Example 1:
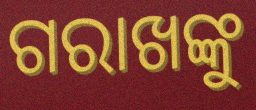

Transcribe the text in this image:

ଗରାଖଙ୍କୁ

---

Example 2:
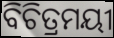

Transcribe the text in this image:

ବିଚିତ୍ରମୟୀ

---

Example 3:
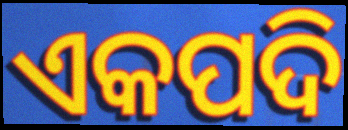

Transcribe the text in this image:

ଏକପଦି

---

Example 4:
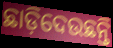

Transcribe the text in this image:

ଛାଡ଼ିଦେଉଛନ୍ତି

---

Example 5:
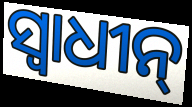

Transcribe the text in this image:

ସ୍ଵାଧୀନ୍